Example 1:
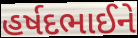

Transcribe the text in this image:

હર્ષદભાઈને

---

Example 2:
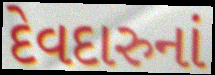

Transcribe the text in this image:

દેવદારુનાં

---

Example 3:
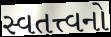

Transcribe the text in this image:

સ્વતત્ત્વનો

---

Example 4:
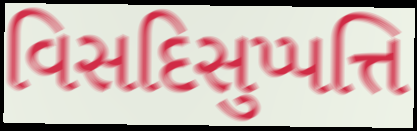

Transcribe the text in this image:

વિસદિસુપ્પત્તિ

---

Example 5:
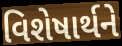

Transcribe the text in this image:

વિશેષાર્થને